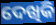
ଦେଖିକି